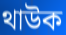
থাউক